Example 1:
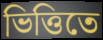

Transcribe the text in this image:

ভিত্তিতে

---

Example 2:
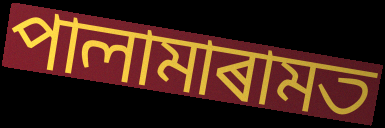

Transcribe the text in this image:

পালামাৰামত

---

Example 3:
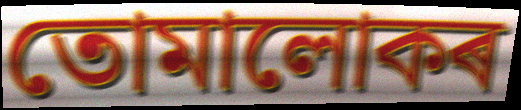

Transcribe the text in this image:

তোমালোকৰ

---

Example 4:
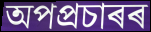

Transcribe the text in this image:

অপপ্ৰচাৰৰ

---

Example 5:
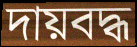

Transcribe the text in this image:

দায়বদ্ধ